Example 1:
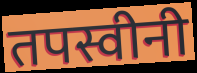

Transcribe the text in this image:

तपस्वीनी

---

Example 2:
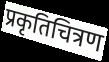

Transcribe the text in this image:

प्रकृतिचित्रण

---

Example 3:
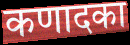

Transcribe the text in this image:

कणादका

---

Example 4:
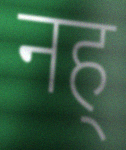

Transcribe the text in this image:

नह्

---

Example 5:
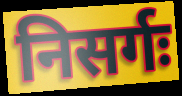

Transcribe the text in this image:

निसर्गः